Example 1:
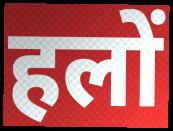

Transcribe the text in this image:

हलों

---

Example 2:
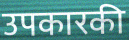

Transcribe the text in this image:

उपकारकी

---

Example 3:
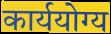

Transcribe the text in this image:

कार्ययोग्य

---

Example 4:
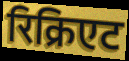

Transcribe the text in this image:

रिक्रिएट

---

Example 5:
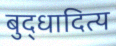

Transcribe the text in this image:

बुद्धादित्य